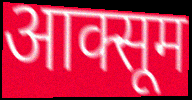
आक्सूम